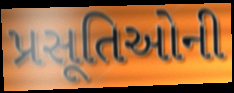
પ્રસૂતિઓની